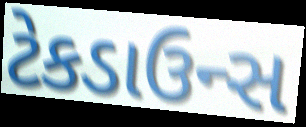
ટેકડાઉન્સ